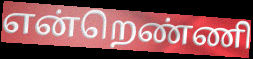
என்றெண்ணி